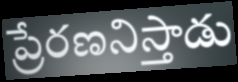
ప్రేరణనిస్తాడు